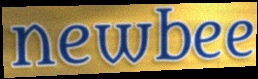
newbee